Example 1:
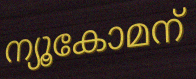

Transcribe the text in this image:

ന്യൂകോമന്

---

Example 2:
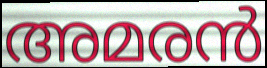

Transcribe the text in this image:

അമരൻ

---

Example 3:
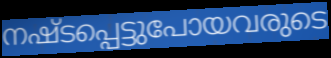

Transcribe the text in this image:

നഷ്ടപ്പെട്ടുപോയവരുടെ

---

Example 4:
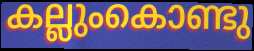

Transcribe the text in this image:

കല്ലുംകൊണ്ടു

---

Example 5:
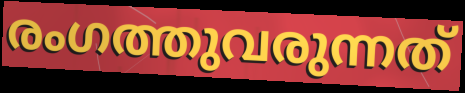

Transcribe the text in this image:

രംഗത്തുവരുന്നത്